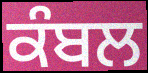
ਕੰਬਲ